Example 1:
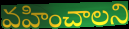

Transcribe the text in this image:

వహించాలని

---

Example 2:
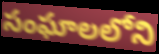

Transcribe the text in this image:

సంఘాలలోని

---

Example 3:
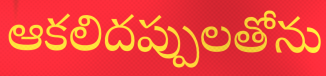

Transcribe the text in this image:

ఆకలిదప్పులతోను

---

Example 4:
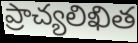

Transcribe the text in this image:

ప్రాచ్యలిఖిత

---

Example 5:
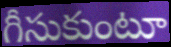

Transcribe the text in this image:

గీసుకుంటూ